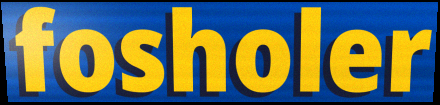
fosholer